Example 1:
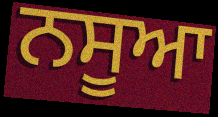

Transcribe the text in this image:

ਨਸੂਆ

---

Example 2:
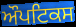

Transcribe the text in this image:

ਔਪਟਿਕਸ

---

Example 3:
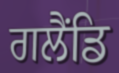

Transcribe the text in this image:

ਗਲੈਂਡਿ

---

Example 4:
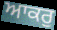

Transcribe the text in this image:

ਆਕਰੁ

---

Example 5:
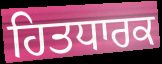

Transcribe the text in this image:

ਹਿਤਧਾਰਕ